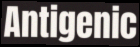
Antigenic